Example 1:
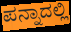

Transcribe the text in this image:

ಪನ್ನಾದಲ್ಲಿ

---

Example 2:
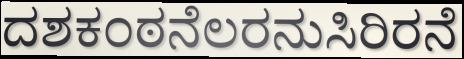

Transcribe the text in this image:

ದಶಕಂಠನೆಲರನುಸಿರಿರನೆ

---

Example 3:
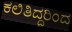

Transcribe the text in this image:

ಕಲಿತಿದ್ದರಿಂದ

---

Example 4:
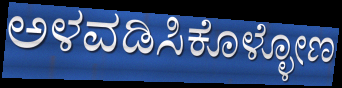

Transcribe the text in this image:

ಅಳವಡಿಸಿಕೊಳ್ಳೋಣ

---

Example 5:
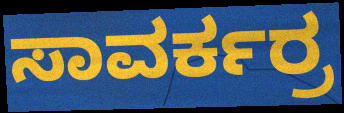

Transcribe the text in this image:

ಸಾವರ್ಕರ್ರ